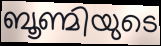
ബൂണ്മിയുടെ